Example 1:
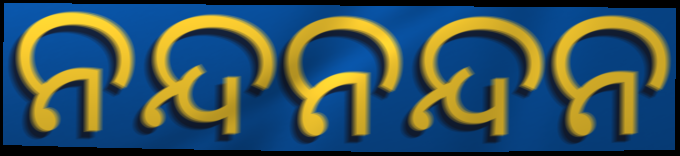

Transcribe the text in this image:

ନନ୍ଦନନ୍ଦନ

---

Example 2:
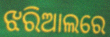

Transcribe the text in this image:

ଝରିଆଲରେ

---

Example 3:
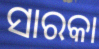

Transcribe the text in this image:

ସାରକା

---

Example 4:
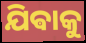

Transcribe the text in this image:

ଯିଵାକୁ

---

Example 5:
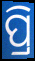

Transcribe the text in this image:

ପ୍ରି